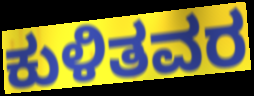
ಕುಳಿತವರ